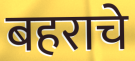
बहराचे